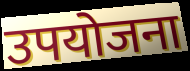
उपयोजना